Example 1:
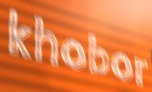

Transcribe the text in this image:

khobor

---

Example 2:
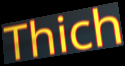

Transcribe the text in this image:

Thich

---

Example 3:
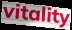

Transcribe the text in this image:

vitality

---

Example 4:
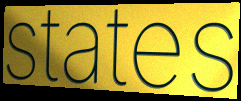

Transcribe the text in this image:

states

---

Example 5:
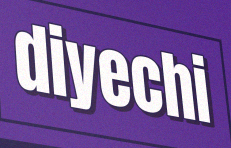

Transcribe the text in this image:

diyechi